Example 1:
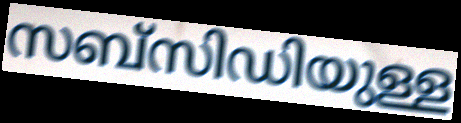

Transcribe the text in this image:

സബ്സിഡിയുള്ള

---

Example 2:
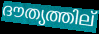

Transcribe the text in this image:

ദൗത്യത്തില്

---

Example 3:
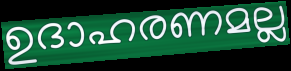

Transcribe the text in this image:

ഉദാഹരണമല്ല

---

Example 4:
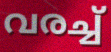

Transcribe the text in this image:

വരച്ച്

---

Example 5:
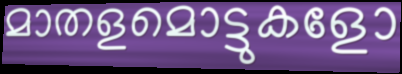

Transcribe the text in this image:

മാതളമൊട്ടുകളോ